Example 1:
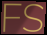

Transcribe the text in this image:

FS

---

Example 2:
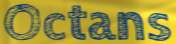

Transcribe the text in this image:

Octans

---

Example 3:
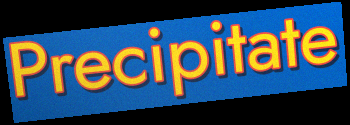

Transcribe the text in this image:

Precipitate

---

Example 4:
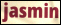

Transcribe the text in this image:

jasmin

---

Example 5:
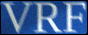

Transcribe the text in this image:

VRF